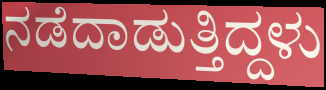
ನಡೆದಾಡುತ್ತಿದ್ದಳು